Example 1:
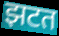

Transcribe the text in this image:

झटत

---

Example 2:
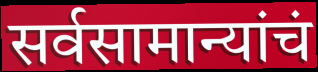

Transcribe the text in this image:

सर्वसामान्यांचं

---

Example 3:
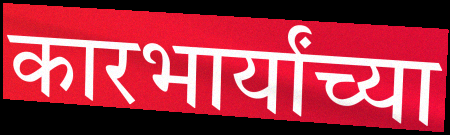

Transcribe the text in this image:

कारभार्यांच्या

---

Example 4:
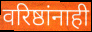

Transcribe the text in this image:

वरिष्ठांनाही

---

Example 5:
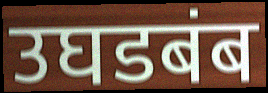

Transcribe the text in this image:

उघडबंब